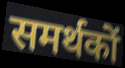
समर्थकों